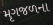
મૃગજળના